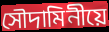
সৌদামিনীয়ে